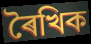
ৰৈখিক